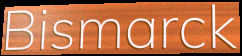
Bismarck